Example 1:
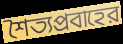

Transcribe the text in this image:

শৈত্যপ্রবাহের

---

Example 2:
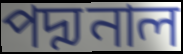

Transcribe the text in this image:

পদ্মনাল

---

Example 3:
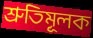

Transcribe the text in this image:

শ্রুতিমূলক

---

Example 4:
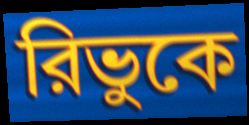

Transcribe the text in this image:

রিভুকে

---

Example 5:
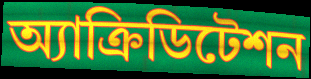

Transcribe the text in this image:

অ্যাক্রিডিটেশন